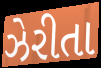
ઝેરીતા